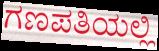
ಗಣಪತಿಯಲ್ಲಿ